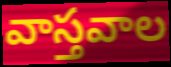
వాస్తవాల